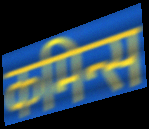
कमिन्स